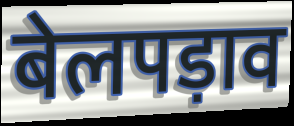
बेलपड़ाव